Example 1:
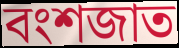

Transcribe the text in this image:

বংশজাত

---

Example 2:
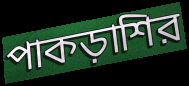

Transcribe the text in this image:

পাকড়াশির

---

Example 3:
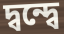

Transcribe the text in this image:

দ্বন্দ্বে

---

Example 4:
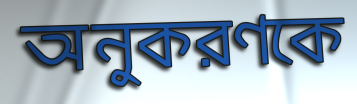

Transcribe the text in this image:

অনুকরণকে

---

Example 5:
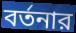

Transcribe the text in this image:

বর্তনার